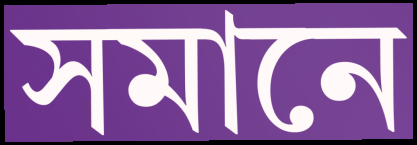
সমানে